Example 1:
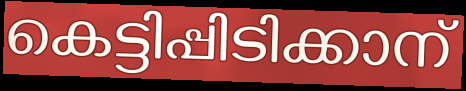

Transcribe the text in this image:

കെട്ടിപ്പിടിക്കാന്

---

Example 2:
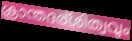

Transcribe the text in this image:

ക്രാന്തദര്ശിത്വവും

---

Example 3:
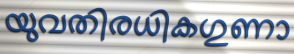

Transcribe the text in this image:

യുവതിരധികഗുണാ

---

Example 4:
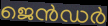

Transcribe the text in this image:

ജെൻഡർ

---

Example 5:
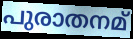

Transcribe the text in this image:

പുരാതനമ്